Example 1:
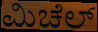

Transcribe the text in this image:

ಮಿಚೆಲ್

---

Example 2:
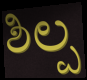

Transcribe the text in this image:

ಶಿಲ್ಪ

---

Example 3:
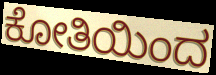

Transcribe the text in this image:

ಕೋತಿಯಿಂದ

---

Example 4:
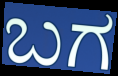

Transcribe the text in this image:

ಬಗ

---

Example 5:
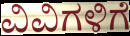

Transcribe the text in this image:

ವಿವಿಗಳಿಗೆ